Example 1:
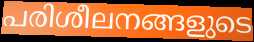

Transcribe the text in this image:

പരിശീലനങ്ങളുടെ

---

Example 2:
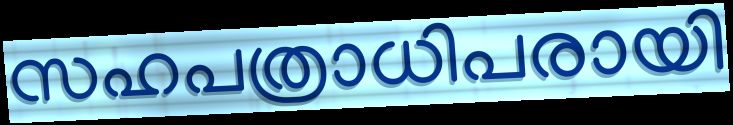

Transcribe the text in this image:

സഹപത്രാധിപരായി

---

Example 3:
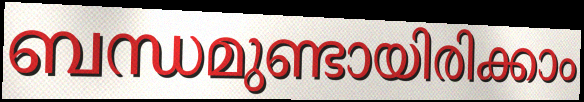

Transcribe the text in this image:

ബന്ധമുണ്ടായിരിക്കാം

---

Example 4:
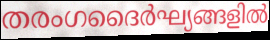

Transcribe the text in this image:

തരംഗദൈർഘ്യങ്ങളിൽ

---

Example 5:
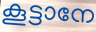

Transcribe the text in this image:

കൂട്ടാനേ